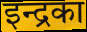
इन्द्रका